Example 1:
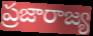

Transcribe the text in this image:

ప్రజారాజ్య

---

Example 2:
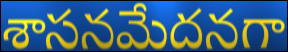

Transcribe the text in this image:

శాసనమేదనగా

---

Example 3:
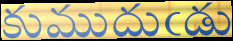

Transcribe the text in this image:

కుముదుఁడు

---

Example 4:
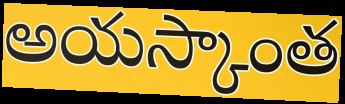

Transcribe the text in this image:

అయస్కాంత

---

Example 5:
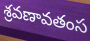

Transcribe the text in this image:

శ్రవణావతంస